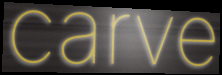
carve